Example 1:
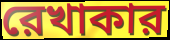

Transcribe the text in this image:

রেখাকার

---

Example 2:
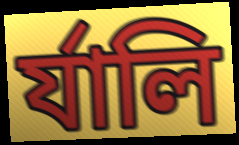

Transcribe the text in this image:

র্যালি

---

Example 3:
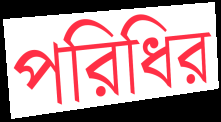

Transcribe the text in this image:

পরিধির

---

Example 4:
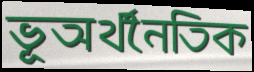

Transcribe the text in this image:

ভূঅর্থনৈতিক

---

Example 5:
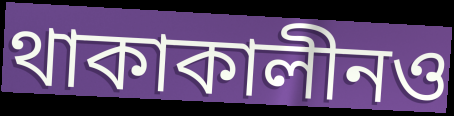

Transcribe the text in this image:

থাকাকালীনও